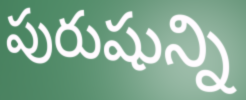
పురుషున్ని